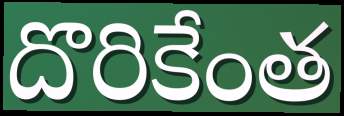
దొరికేంత